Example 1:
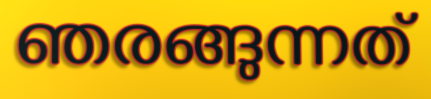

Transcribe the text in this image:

ഞരങ്ങുന്നത്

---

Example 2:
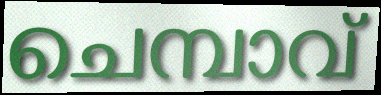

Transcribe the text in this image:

ചെമ്പാവ്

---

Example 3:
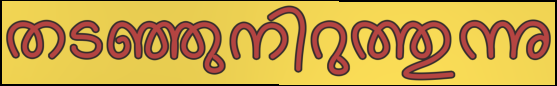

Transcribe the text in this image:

തടഞ്ഞുനിറുത്തുന്നു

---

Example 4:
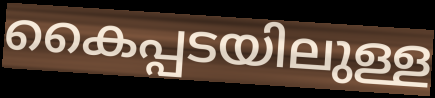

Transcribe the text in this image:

കൈപ്പടയിലുള്ള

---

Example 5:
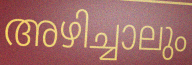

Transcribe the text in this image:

അഴിച്ചാലും